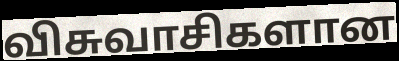
விசுவாசிகளான